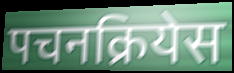
पचनक्रियेस